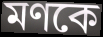
মণকে